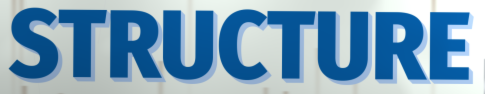
STRUCTURE